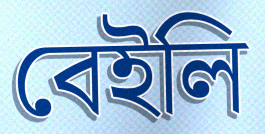
বেইলি